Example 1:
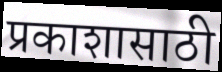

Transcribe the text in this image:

प्रकाशासाठी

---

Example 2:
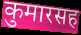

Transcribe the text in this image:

कुमारसह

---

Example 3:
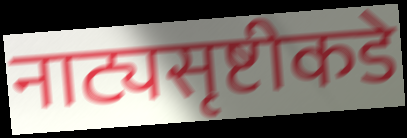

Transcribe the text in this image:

नाट्यसृष्टीकडे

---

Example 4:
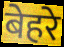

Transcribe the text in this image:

बेहरे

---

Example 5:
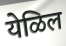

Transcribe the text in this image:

येळिल